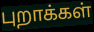
புறாக்கள்